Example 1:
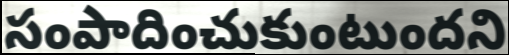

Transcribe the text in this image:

సంపాదించుకుంటుందని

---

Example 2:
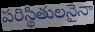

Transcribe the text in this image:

పరిస్థితులనైనా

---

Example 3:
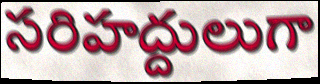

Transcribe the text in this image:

సరిహద్దులుగా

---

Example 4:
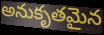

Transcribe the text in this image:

అనుకృతమైన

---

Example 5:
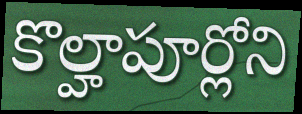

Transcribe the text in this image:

కొల్హాపూర్లోని